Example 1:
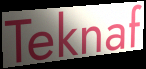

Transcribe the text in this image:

Teknaf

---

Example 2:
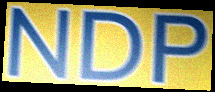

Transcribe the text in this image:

NDP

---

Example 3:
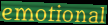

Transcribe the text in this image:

emotional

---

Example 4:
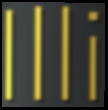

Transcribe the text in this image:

Illi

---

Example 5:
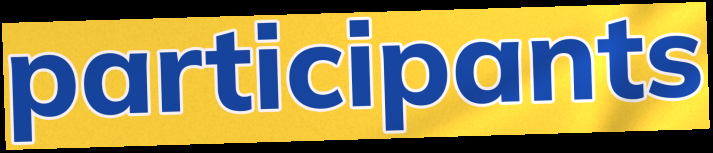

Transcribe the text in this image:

participants